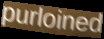
purloined